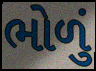
ભોળું